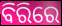
ବିରିରେ